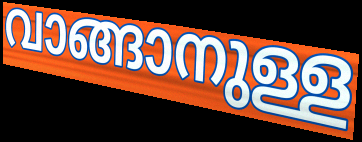
വാങ്ങാനുള്ള